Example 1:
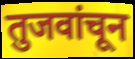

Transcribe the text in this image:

तुजवांचून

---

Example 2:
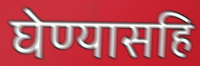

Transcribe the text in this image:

घेण्यासहि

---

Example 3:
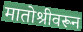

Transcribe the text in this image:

मातोश्रीवरून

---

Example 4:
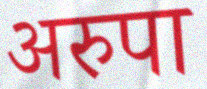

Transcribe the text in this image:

अरुपा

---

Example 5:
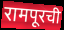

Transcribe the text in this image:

रामपूरची